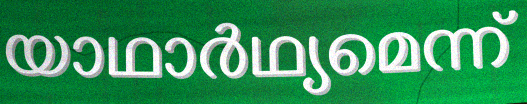
യാഥാർഥ്യമെന്ന്